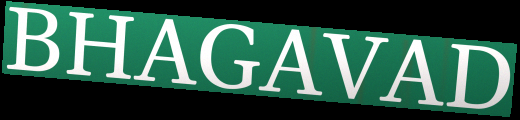
BHAGAVAD